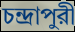
চন্দ্রাপুরী